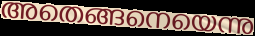
അതെങ്ങനെയെന്നു